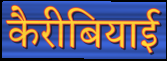
कैरीबियाई